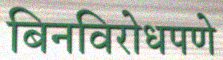
बिनविरोधपणे